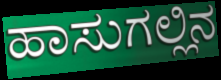
ಹಾಸುಗಲ್ಲಿನ